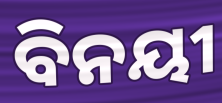
ବିନୟୀ